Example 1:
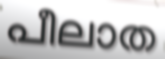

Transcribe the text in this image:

പീലാത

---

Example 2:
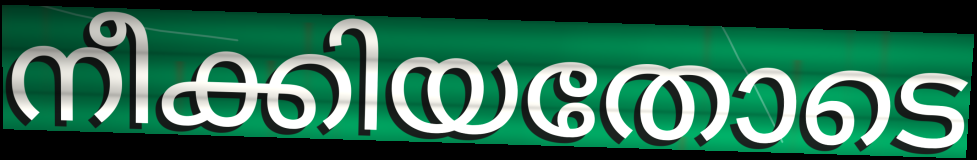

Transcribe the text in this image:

നീക്കിയതോടെ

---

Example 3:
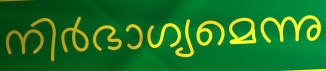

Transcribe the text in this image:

നിർഭാഗ്യമെന്നു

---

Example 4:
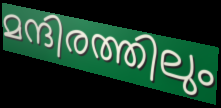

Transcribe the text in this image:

മന്ദിരത്തിലും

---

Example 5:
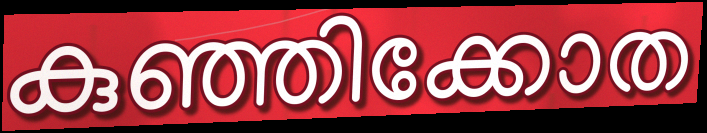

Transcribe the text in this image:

കുഞ്ഞിക്കോത